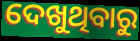
ଦେଖୁଥିବାରୁ